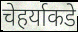
चेहर्याकडे